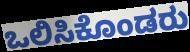
ಒಲಿಸಿಕೊಂಡರು